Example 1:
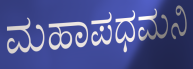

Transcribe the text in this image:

ಮಹಾಪಧಮನಿ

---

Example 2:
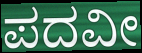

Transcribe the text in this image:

ಪದವೀ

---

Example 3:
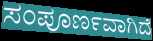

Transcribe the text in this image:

ಸಂಪೂರ್ಣವಾಗಿದೆ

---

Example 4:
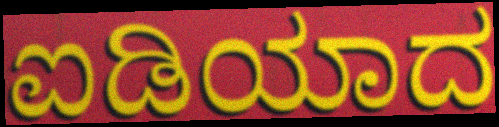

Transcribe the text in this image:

ಐಡಿಯಾದ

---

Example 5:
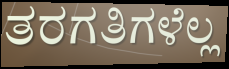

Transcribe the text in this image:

ತರಗತಿಗಳೆಲ್ಲ